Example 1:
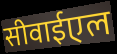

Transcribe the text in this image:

सीवाईएल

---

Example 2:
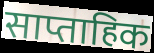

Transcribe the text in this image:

साप्ताहिक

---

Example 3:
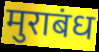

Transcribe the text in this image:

मुराबंध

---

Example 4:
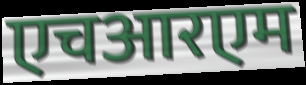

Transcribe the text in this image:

एचआरएम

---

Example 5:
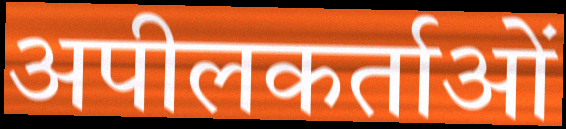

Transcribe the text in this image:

अपीलकर्ताओं